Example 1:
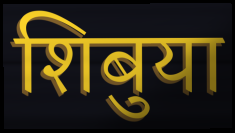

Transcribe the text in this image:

शिबुया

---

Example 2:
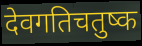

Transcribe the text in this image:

देवगतिचतुष्क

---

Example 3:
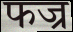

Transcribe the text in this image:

फज्र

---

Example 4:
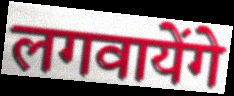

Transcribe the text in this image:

लगवायेंगे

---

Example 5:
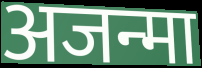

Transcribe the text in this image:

अजन्‍मा